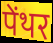
पेंथर